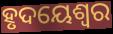
ହୃଦୟେଶ୍ୱର